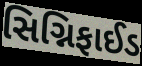
સિગ્નિફાઈડ